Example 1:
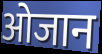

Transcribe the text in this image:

ओजान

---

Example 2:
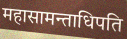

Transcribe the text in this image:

महासामन्ताधिपति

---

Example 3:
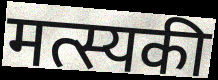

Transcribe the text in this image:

मत्स्यकी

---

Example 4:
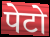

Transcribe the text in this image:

पेटो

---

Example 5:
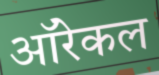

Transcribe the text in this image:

ऑरेकल